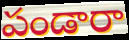
పండారా